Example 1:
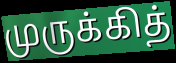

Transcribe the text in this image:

முருக்கித்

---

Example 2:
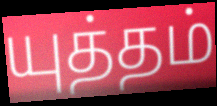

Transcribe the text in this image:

யுத்தம்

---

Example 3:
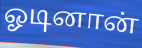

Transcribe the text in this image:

ஓடினான்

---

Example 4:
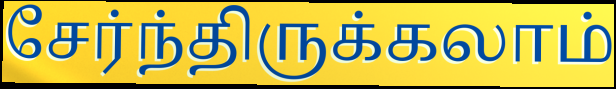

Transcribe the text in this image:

சேர்ந்திருக்கலாம்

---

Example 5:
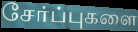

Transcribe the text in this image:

சேர்ப்புகளை